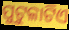
ପୁଟୁଳାଟିଏ